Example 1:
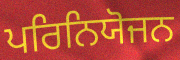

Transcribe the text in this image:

ਪਰਿਨਿਯੋਜਨ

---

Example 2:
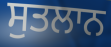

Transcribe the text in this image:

ਸੁਤਲਾਨ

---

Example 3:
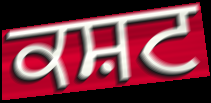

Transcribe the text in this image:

ਕਸ਼ਟ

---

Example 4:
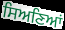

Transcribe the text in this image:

ਸਿਅਣਿਆਂ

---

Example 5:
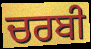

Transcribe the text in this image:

ਚਰਬੀ